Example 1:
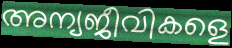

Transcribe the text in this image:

അന്യജീവികളെ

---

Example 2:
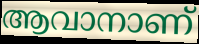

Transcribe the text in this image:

ആവാനാണ്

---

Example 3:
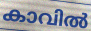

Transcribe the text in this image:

കാവിൽ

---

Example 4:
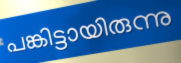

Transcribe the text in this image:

പങ്കിട്ടായിരുന്നു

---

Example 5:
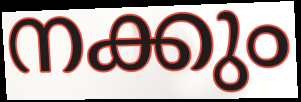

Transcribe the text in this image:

നക്കും